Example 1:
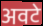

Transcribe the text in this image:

अवटे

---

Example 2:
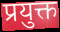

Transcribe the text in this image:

प्रयुक्त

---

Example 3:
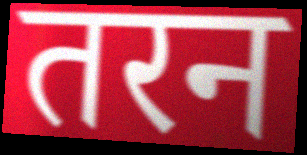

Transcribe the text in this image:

तरन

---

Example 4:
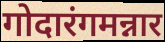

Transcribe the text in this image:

गोदारंगमन्नार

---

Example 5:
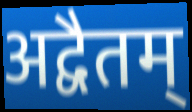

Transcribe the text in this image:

अद्वैतम्